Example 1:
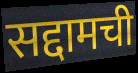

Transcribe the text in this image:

सद्दामची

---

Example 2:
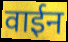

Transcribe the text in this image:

वाईन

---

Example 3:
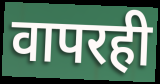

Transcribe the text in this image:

वापरही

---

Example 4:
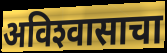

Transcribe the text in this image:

अविश्‍वासाचा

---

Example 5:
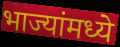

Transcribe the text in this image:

भाज्यांमध्ये